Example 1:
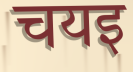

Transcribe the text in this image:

चयइ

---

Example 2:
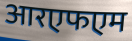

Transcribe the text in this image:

आरएफएम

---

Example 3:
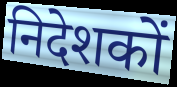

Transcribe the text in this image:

निदेशकों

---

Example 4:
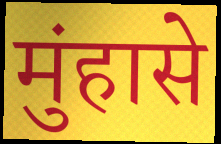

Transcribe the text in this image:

मुंहासे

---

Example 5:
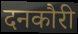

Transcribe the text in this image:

दनकौरी